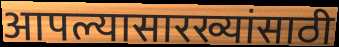
आपल्यासारख्यांसाठी